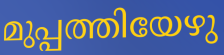
മുപ്പത്തിയേഴു